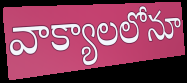
వాక్యాలలోనూ